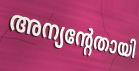
അന്യന്റേതായി